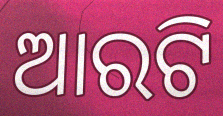
ଆରଟି